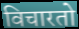
विचारतो